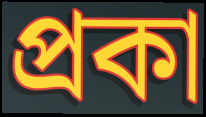
প্রকা